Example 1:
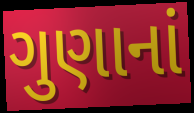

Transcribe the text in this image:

ગુણાનાં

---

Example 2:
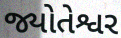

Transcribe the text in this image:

જ્યોતેશ્વર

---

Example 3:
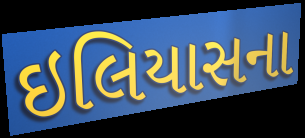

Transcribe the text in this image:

ઇલિયાસના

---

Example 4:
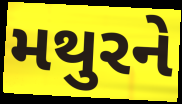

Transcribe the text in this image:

મથુરને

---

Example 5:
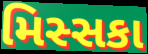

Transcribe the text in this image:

મિસ્સકા